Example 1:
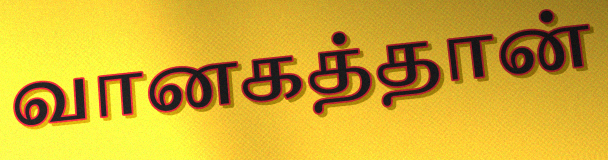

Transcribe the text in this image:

வானகத்தான்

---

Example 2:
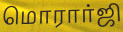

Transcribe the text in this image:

மொரார்ஜி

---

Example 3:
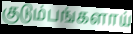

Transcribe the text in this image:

குடும்பங்களாய்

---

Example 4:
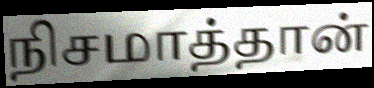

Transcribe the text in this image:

நிசமாத்தான்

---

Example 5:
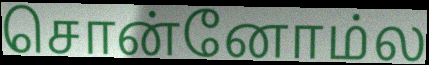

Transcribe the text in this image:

சொன்னோம்ல